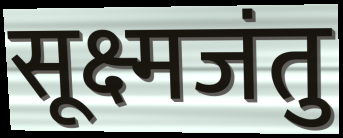
सूक्ष्मजंतु